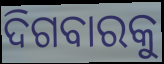
ଦିଗବାରକୁ